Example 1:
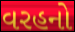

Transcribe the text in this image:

વરહનો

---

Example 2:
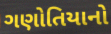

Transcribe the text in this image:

ગણોતિયાનો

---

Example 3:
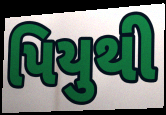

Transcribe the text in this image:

પિયુથી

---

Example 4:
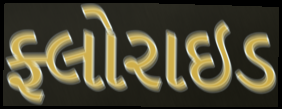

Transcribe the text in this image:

ફ્લોરાઇડ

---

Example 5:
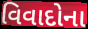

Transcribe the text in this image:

વિવાદોના